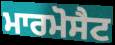
ਮਾਰਮੋਸੈਟ